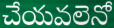
చేయవలెనో